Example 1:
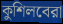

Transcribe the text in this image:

কুশিলবেরা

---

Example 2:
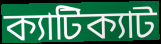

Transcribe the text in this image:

ক্যাটিক্যাট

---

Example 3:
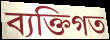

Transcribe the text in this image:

ব্যক্তিগত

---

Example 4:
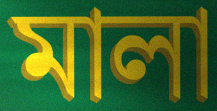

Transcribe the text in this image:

মালা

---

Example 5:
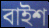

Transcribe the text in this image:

বাইশ